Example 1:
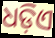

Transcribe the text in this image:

ଧଡ଼ିଏ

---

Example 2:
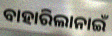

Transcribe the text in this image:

ବାହାରିଲାନାଇଁ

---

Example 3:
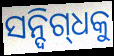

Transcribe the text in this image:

ସନ୍ଦିଗ୍‌ଧକୁ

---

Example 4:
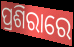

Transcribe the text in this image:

ପ୍ରଶିରାରେ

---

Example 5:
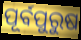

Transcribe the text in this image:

ପୂର୍ବପୁରୁଷ